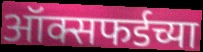
ऑक्सफर्डच्या